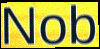
Nob